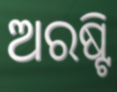
ଅରଷ୍ଟି